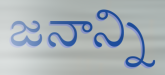
జనాన్ని